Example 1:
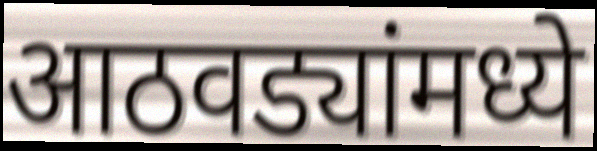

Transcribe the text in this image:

आठवड्यांमध्ये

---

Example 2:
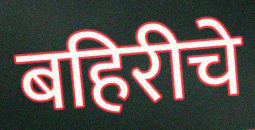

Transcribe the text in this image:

बहिरीचे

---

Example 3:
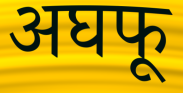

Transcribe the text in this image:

अघफू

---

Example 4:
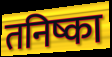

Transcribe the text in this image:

तनिष्का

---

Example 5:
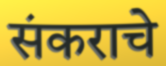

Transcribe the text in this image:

संकराचे